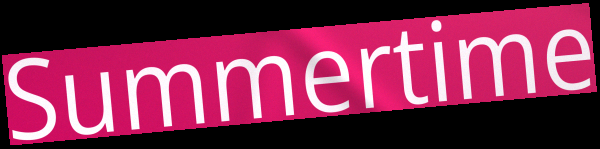
Summertime